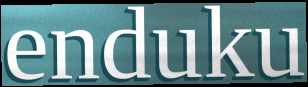
enduku